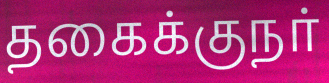
தகைக்குநர்